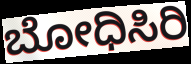
ಬೋಧಿಸಿರಿ